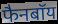
फैनबॉय